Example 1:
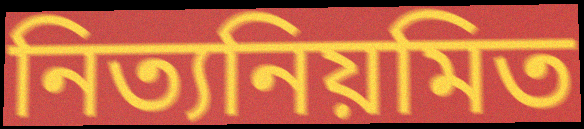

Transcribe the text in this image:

নিত্যনিয়মিত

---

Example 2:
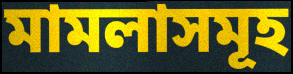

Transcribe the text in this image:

মামলাসমূহ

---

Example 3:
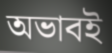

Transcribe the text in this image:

অভাবই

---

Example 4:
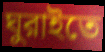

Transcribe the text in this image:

ঘুরাইতে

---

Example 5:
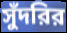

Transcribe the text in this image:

সুঁদরির